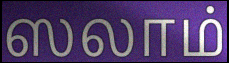
ஸலாம்